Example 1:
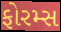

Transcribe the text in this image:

ફોરમ્સ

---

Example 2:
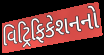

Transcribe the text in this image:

વિટ્રિફિકેશનનો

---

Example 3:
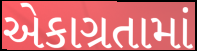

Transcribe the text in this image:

એકાગ્રતામાં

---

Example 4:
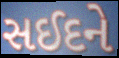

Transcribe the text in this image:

સઈદને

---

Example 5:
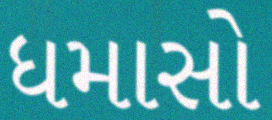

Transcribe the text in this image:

ધમાસો